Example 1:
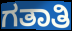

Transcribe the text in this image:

ಗತಾತಿ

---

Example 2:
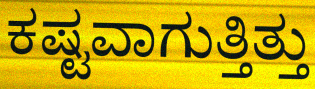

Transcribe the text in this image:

ಕಷ್ಟವಾಗುತ್ತಿತ್ತು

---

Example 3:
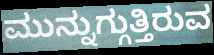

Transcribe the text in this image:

ಮುನ್ನುಗ್ಗುತ್ತಿರುವ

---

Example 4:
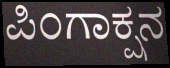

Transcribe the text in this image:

ಪಿಂಗಾಕ್ಷನ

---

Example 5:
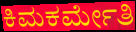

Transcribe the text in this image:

ಕಿಮಕರ್ಮೇತಿ